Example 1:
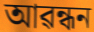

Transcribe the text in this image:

আৱন্ধন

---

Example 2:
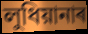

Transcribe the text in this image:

লুধিয়ানাৰ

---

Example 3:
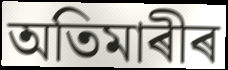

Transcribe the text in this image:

অতিমাৰীৰ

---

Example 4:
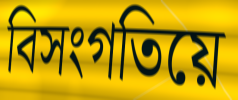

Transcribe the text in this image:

বিসংগতিয়ে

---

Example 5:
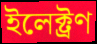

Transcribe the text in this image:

ইলেক্ট্ৰণ